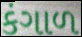
કંગાળ